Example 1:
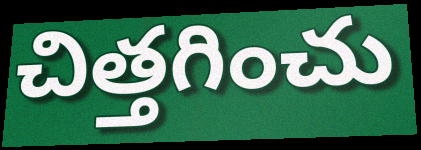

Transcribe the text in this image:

చిత్తగించు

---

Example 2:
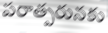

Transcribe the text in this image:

పరాత్పరునకు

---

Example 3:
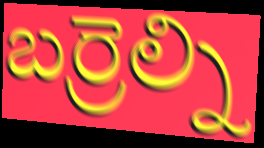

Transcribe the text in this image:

బర్రెల్ని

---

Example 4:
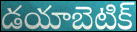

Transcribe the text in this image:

డయాబెటిక్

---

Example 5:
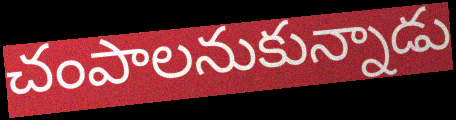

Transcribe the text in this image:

చంపాలనుకున్నాడు